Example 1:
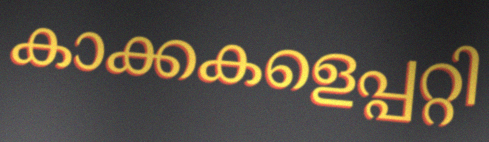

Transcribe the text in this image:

കാക്കകളെപ്പറ്റി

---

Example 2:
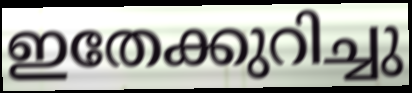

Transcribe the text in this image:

ഇതേക്കുറിച്ചു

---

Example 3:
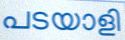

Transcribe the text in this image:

പടയാളി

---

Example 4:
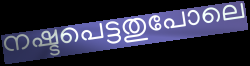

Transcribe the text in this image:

നഷ്ടപെട്ടതുപോലെ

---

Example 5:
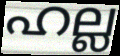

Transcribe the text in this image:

ഹല്ല